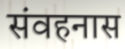
संवहनास